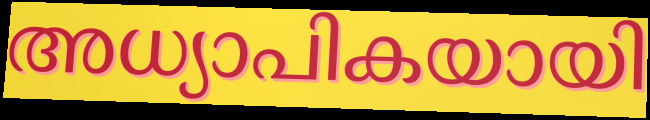
അധ്യാപികയായി